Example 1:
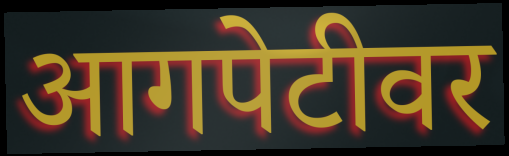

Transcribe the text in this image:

आगपेटीवर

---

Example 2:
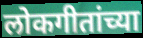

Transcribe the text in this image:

लोकगीतांच्या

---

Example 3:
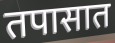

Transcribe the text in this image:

तपासात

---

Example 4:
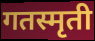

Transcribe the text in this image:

गतस्मृती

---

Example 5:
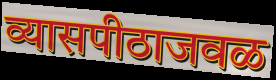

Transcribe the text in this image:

व्यासपीठाजवळ